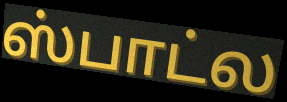
ஸ்பாட்ல